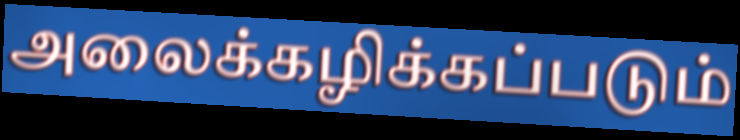
அலைக்கழிக்கப்படும்